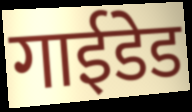
गाईडेड